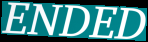
ENDED